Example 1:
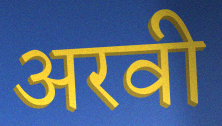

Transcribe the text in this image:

अरवी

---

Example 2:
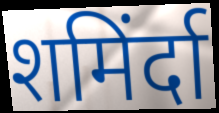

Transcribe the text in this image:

शमिंर्दा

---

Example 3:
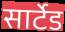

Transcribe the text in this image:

सार्टेड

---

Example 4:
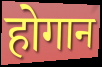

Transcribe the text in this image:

होगान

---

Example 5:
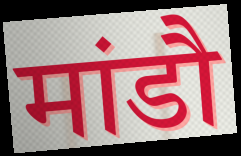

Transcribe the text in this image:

मांडौ